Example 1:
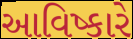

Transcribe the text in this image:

આવિષ્કારે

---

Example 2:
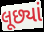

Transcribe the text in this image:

લૂછ્યાં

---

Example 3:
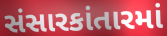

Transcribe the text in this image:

સંસારકાંતારમાં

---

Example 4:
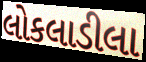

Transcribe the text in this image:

લોકલાડીલા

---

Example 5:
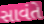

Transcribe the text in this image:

સાવંતે